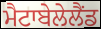
ਮੈਟਾਬੇਲੇਲੈਂਡ